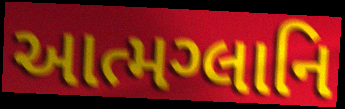
આત્મગ્લાનિ